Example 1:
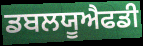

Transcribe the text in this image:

ਡਬਲਯੂਐਫਡੀ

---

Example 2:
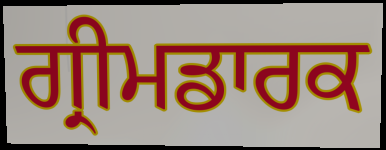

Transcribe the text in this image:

ਗ੍ਰੀਮਡਾਰਕ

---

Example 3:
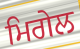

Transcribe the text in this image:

ਮਿਗੇਲ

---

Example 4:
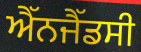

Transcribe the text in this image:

ਐੱਨਜੈੱਡਸੀ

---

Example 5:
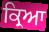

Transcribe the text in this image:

ਕ੍ਰਿਆ